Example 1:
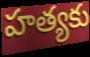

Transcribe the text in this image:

హత్యకు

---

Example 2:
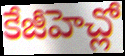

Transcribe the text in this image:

కేజీహెచ్లో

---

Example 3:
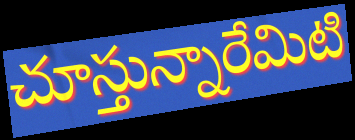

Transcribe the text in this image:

చూస్తున్నారేమిటి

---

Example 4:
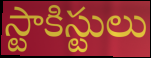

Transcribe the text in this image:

స్టాకిస్టులు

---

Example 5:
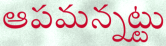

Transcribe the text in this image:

ఆపమన్నట్టు